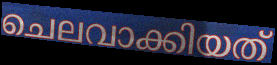
ചെലവാക്കിയത്